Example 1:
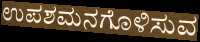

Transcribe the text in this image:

ಉಪಶಮನಗೊಳಿಸುವ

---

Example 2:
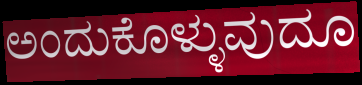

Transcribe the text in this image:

ಅಂದುಕೊಳ್ಳುವುದೂ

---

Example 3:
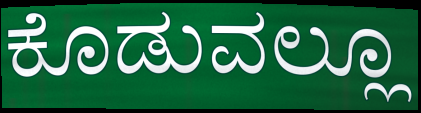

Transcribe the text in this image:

ಕೊಡುವಲ್ಲೂ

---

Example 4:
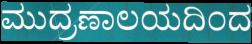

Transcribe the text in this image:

ಮುದ್ರಣಾಲಯದಿಂದ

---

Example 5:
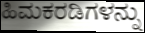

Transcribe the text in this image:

ಹಿಮಕರಡಿಗಳನ್ನು